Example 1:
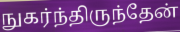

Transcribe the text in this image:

நுகர்ந்திருந்தேன்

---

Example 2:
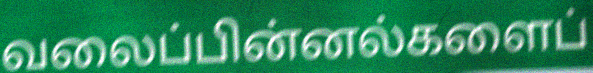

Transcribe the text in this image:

வலைப்பின்னல்களைப்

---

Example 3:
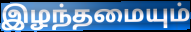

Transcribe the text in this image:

இழந்தமையும்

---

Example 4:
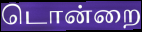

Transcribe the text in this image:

டொன்றை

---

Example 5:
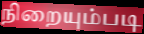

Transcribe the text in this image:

நிறையும்படி